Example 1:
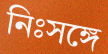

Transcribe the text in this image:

নিঃসঙ্গে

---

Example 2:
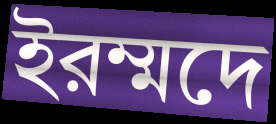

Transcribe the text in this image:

ইরম্মদে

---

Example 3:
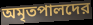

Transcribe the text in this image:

অমৃতপালদের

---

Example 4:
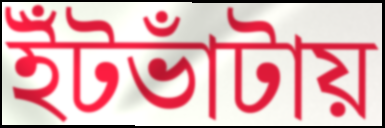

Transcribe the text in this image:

ইঁটভাঁটায়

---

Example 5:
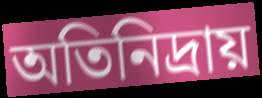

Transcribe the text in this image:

অতিনিদ্রায়